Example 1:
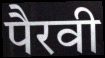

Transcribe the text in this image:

पैरवी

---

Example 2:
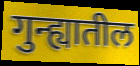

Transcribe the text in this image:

गुन्ह्यातील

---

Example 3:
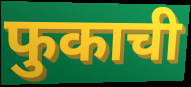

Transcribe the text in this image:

फुकाची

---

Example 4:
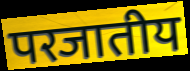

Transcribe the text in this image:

परजातीय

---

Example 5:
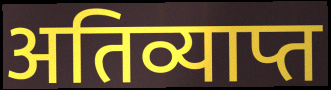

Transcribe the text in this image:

अतिव्याप्त